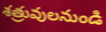
శత్రువులనుండి